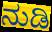
ನುಡಿ